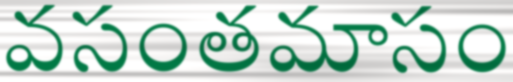
వసంతమాసం